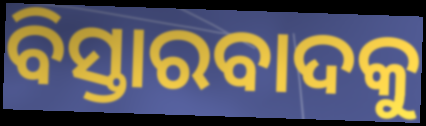
ବିସ୍ତାରବାଦକୁ